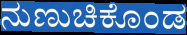
ನುಣುಚಿಕೊಂಡ